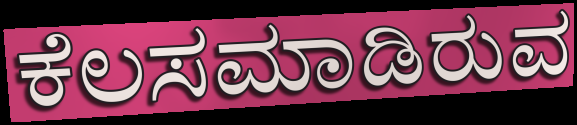
ಕೆಲಸಮಾಡಿರುವ